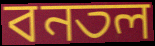
বনতল